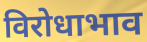
विरोधाभाव